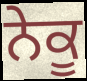
ਨੇਕੂ